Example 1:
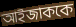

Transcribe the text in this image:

আইজাককে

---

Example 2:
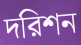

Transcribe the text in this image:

দরিশন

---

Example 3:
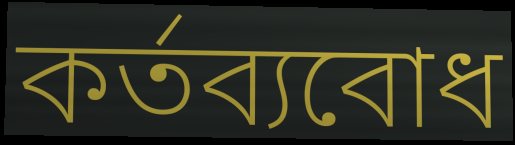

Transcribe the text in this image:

কর্তব্যবোধ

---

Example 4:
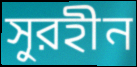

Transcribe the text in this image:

সুরহীন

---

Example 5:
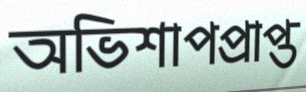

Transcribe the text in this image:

অভিশাপপ্রাপ্ত